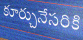
కూర్చునేసరికి